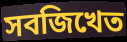
সবজিখেত